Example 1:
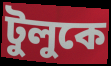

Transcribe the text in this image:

টুলুকে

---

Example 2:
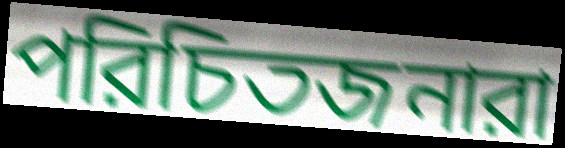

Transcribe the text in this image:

পরিচিতজনারা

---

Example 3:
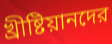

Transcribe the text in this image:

খ্রীষ্টিয়ানদের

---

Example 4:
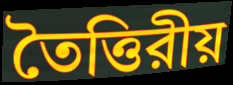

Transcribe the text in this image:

তৈত্তিরীয়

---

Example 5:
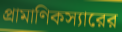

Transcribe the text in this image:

প্রামাণিকস্যারের